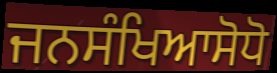
ਜਨਸੰਖਿਆਸੋਧੋ